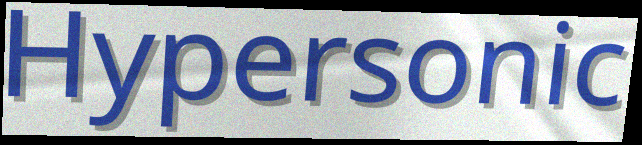
Hypersonic